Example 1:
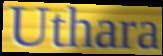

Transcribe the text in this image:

Uthara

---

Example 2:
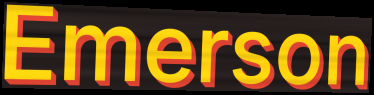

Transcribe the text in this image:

Emerson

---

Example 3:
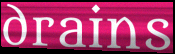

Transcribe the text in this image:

drains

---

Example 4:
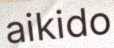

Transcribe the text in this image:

aikido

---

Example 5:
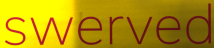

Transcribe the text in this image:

swerved